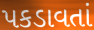
પકડાવતાં